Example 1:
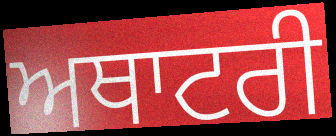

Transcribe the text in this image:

ਅਥਾਟਰੀ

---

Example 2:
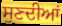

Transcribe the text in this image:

ਸੁਣਦੀਆਂ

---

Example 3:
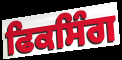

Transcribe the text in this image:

ਫਿਕਸਿੰਗ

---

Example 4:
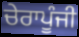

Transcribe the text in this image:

ਚੇਰਾਪੂੰਜੀ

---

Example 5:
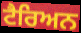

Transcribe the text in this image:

ਟੈਰਿਅਨ